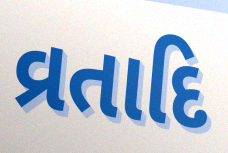
વ્રતાદિ